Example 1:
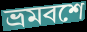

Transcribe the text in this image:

ভ্রমবশে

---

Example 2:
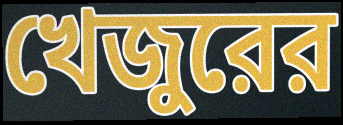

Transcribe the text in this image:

খেজুরের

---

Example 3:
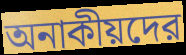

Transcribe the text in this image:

অনাকীয়দের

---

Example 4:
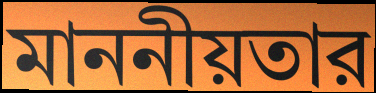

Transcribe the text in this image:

মাননীয়তার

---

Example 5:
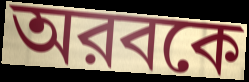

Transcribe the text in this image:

অরবকে